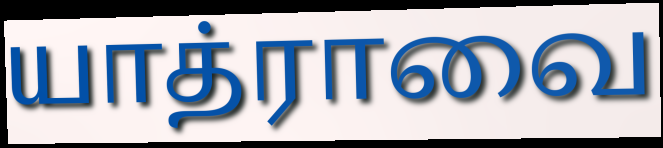
யாத்ராவை